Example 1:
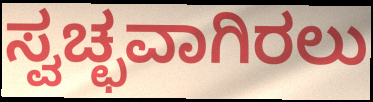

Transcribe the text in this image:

ಸ್ವಚ್ಛವಾಗಿರಲು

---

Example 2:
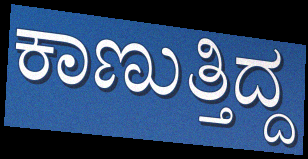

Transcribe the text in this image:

ಕಾಣುತ್ತಿದ್ದ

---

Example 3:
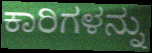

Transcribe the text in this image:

ಕಾರಿಗಳನ್ನು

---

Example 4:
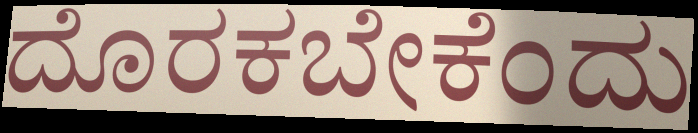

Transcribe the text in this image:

ದೊರಕಬೇಕೆಂದು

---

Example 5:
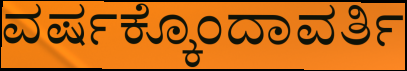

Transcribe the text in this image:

ವರ್ಷಕ್ಕೊಂದಾವರ್ತಿ